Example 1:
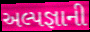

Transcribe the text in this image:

અલ્પજ્ઞાની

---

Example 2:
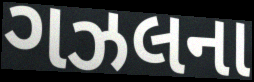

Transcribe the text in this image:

ગઝલના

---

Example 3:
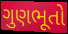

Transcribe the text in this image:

ગુણભૂતો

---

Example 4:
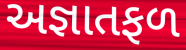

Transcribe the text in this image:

અજ્ઞાતફળ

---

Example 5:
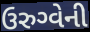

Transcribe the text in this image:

ઉરુગ્વેની